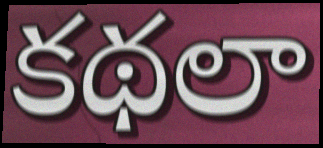
కథలా